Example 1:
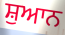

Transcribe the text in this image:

ਸ਼ੁਆਨ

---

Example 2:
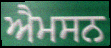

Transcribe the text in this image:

ਐਮਸਨ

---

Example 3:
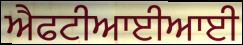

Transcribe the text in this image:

ਐਫਟੀਆਈਆਈ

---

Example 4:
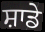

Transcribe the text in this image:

ਸ਼ਾਡੇ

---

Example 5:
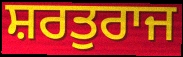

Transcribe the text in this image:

ਸ਼ਰਤੁਰਾਜ